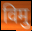
विमु